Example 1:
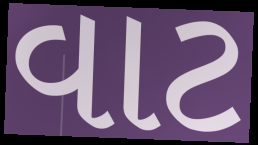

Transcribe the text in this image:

વાટ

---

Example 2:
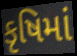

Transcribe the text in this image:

કૃષિમાં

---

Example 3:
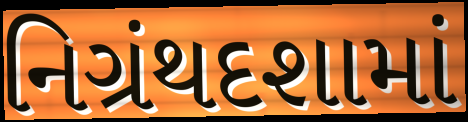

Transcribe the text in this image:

નિગ્રંથદશામાં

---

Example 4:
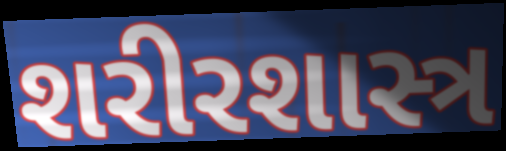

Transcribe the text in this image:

શરીરશાસ્ત્ર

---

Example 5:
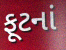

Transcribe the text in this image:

ફૂટનાં